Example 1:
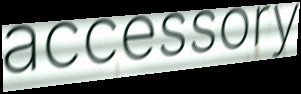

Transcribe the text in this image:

accessory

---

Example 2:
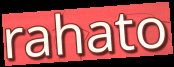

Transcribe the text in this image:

rahato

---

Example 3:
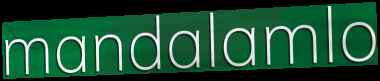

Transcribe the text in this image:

mandalamlo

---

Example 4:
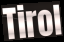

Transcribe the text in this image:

Tirol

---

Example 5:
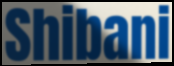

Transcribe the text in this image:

Shibani